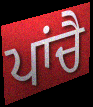
ਪਾਂਚੈ